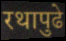
रथापुढे